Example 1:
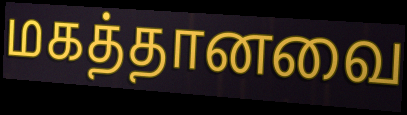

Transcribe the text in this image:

மகத்தானவை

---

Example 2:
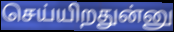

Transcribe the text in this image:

செய்யிறதுன்னு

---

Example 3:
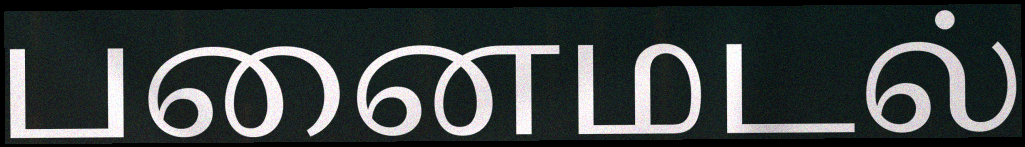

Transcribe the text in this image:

பனைமடல்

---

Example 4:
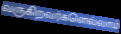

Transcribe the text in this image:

வருகிறவர்களெல்லாம்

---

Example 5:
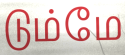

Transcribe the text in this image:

டும்மே